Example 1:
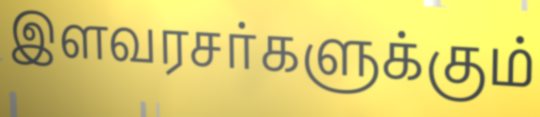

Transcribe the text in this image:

இளவரசர்களுக்கும்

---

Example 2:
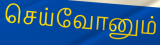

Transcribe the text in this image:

செய்வோனும்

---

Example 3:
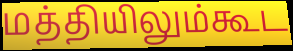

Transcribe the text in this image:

மத்தியிலும்கூட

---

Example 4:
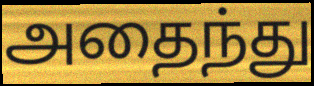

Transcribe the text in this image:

அதைந்து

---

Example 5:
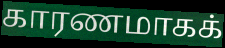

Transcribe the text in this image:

காரணமாகக்